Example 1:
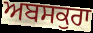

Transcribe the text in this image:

ਅਬਸਕੁਰਾ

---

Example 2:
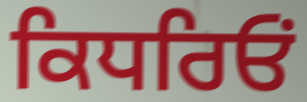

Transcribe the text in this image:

ਕਿਧਰਿਓਂ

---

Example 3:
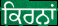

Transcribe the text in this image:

ਕਿਰਨਾਂ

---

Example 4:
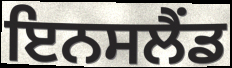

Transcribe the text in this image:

ਇਨਸਲੈਂਡ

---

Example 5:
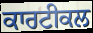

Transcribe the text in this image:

ਕਾਰਟੀਕਲ